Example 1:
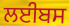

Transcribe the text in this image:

ਲਈਬਸ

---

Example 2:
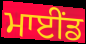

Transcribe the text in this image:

ਮਾਈਂਡ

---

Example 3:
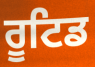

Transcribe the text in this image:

ਰੂਟਿਡ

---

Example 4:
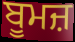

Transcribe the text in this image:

ਬੂਮਜ਼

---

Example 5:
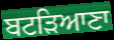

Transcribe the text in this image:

ਬਟੜਿਆਣਾ